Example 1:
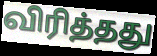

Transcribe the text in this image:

விரித்தது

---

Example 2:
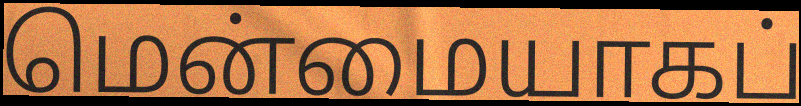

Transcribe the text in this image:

மென்மையாகப்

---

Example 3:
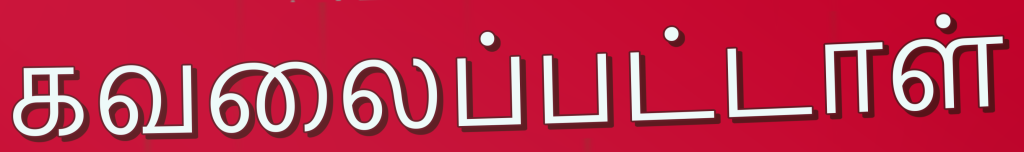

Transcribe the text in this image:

கவலைப்பட்டாள்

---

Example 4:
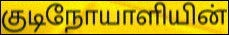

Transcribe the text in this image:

குடிநோயாளியின்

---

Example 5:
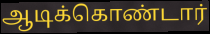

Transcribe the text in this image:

ஆடிக்கொண்டார்